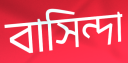
বাসিন্দা